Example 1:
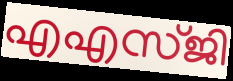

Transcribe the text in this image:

എഎസ്ജി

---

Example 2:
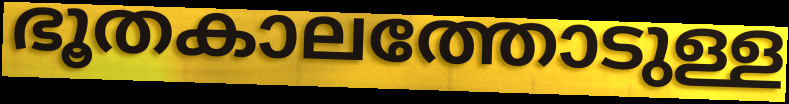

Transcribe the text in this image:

ഭൂതകാലത്തോടുള്ള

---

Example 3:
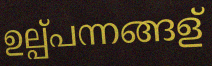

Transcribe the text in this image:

ഉല്പ്പന്നങ്ങള്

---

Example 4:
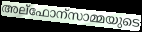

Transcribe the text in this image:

അല്ഫോന്സാമ്മയുടെ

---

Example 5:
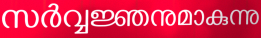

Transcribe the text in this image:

സർവ്വജ്ഞനുമാകുന്നു